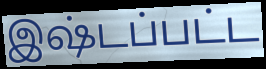
இஷ்டப்பட்ட